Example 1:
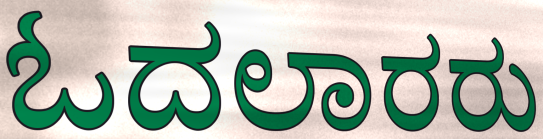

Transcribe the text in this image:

ಓದಲಾರರು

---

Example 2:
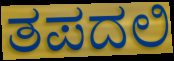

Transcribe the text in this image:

ತಪದಲಿ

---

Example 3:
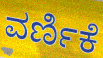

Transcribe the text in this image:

ವರ್ಣಿಕೆ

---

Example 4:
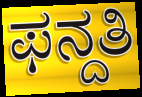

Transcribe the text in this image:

ಫನ್ದತಿ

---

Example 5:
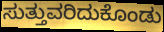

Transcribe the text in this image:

ಸುತ್ತುವರಿದುಕೊಂಡು